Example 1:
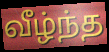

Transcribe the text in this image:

வீழ்ந்த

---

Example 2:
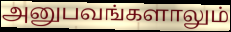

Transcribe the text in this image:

அனுபவங்களாலும்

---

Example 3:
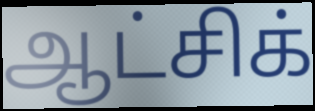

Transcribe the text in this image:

ஆட்சிக்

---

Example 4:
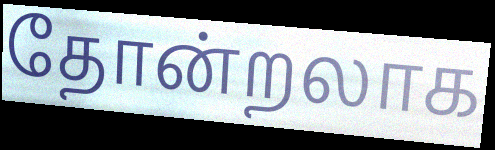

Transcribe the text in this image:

தோன்றலாக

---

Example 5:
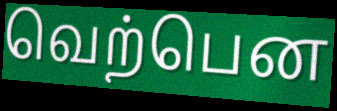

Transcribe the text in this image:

வெற்பென